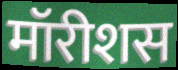
मॉरीशस